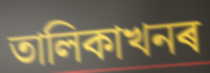
তালিকাখনৰ